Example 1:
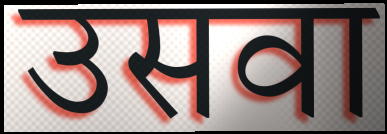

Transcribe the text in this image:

उसवा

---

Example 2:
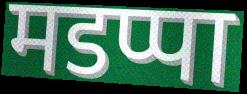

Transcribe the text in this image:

मडप्पा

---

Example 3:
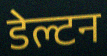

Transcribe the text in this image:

डेल्टन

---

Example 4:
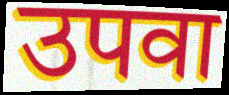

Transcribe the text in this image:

उपवा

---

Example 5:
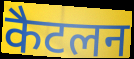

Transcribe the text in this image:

कैटलन